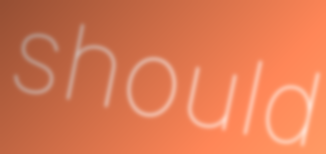
should